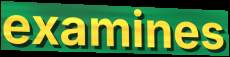
examines